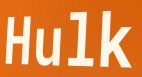
Hulk